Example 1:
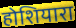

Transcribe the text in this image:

होशियारा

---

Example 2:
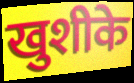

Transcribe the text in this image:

खुशीके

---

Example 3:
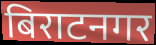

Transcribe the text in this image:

बिराटनगर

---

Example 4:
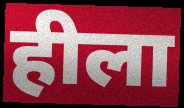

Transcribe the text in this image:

हीला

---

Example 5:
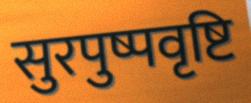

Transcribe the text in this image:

सुरपुष्पवृष्टि